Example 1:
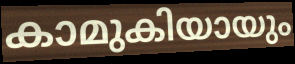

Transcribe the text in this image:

കാമുകിയായും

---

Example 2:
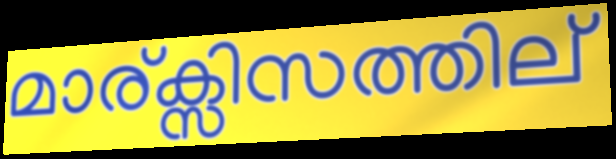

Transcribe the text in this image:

മാര്ക്സിസത്തില്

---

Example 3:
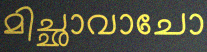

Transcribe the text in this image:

മിച്ഛാവാചോ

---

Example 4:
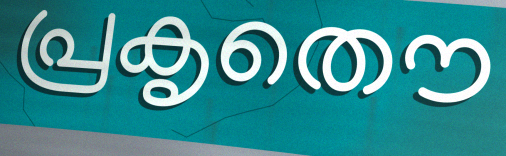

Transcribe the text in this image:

പ്രകൃതൌ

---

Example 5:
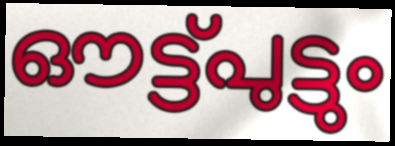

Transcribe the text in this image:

ഔട്ട്പുട്ടും